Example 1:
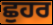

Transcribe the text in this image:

ਛੁਹਰ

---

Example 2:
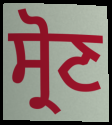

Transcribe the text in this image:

ਸ੍ਰੋਣ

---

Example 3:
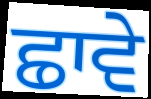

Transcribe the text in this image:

ਛਾਵੇ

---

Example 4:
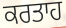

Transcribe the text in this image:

ਕਰਤਾਹ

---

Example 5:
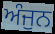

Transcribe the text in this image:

ਅੰਜੁਨ